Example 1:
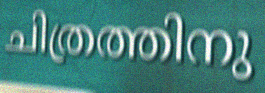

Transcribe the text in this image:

ചിത്രത്തിനു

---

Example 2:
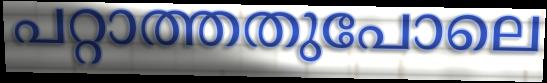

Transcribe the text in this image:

പറ്റാത്തതുപോലെ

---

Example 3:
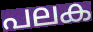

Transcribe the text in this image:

പലക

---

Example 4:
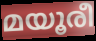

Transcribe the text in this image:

മയൂരീ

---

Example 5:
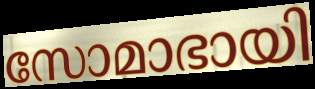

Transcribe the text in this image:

സോമാഭായി